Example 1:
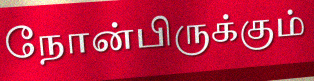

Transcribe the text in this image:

நோன்பிருக்கும்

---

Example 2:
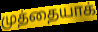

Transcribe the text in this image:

முத்தையாக்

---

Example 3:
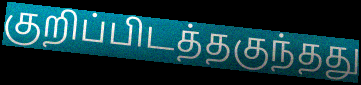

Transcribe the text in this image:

குறிப்பிடத்தகுந்தது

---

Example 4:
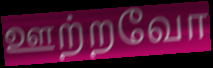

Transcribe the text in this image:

ஊற்றவோ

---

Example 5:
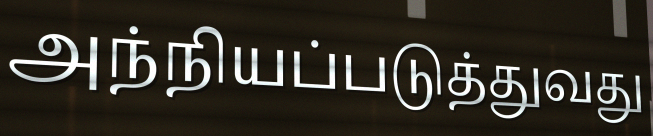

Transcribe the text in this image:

அந்நியப்படுத்துவது